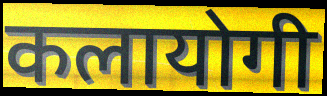
कलायोगी